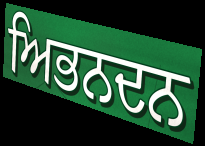
ਅਿਭਨਦਨ